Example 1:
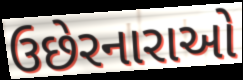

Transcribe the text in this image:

ઉછેરનારાઓ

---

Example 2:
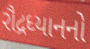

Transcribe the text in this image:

રૌદ્રધ્યાનનો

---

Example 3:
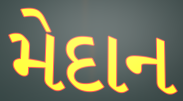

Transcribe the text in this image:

મેદાન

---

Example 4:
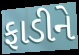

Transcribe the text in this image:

ફાડીને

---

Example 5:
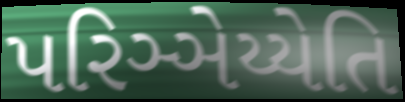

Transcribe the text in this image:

પરિઞ્ઞેય્યેતિ